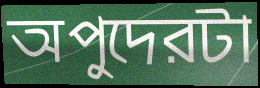
অপুদেরটা